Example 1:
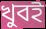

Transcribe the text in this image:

খুবই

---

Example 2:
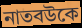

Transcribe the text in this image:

নাতবউকে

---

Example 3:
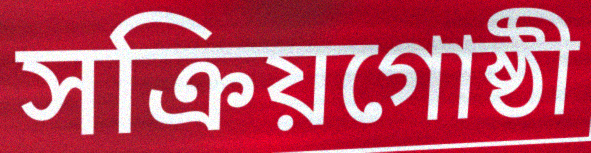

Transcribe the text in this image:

সক্রিয়গোষ্ঠী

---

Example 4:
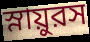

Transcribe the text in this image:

স্নায়ুরস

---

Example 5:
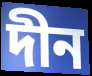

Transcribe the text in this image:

দীন